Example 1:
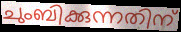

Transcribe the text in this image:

ചുംബിക്കുന്നതിന്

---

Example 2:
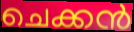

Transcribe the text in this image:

ചെക്കൻ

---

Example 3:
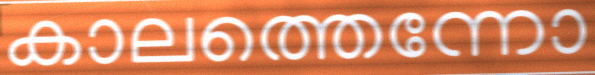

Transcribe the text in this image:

കാലത്തെന്നോ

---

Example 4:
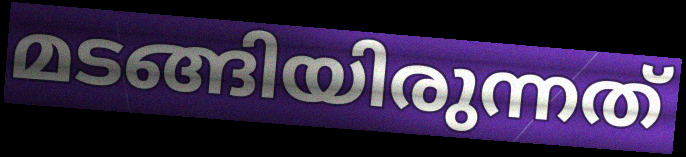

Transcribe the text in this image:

മടങ്ങിയിരുന്നത്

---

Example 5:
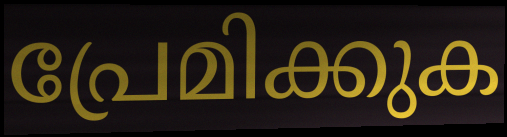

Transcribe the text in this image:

പ്രേമിക്കുക